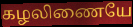
கழலிணையே